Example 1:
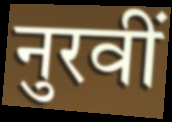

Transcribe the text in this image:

नुरवीं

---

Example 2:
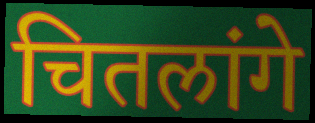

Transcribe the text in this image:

चितलांगे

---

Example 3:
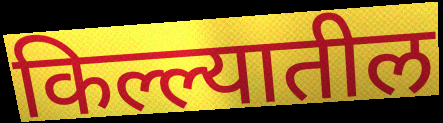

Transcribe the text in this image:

किल्ल्यातील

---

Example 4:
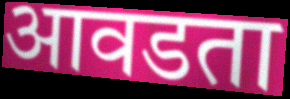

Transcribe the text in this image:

आवडता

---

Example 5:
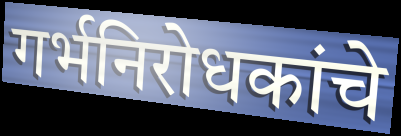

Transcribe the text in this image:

गर्भनिरोधकांचे